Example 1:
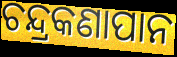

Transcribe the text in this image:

ଚନ୍ଦ୍ରକଣାପାନ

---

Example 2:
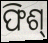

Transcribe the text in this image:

ଫିଶ୍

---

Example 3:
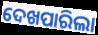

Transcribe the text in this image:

ଦେଖପାରିଲା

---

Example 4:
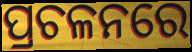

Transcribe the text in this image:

ପ୍ରଚଳନରେ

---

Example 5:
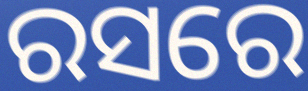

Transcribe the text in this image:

ରସରେ